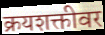
क्रयशक्तीवर